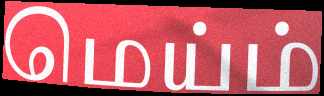
மெய்ம்